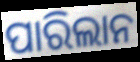
ପାରିଲାନ